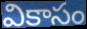
వికాసం